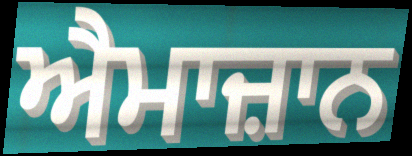
ਐਮਾਜ਼ਾਨ